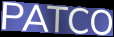
PATCO